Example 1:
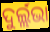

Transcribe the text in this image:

ଦୁର୍ଲ୍ଲଭା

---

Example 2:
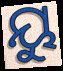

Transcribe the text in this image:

ୟୁ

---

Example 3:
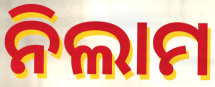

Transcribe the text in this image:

ନିଲାମ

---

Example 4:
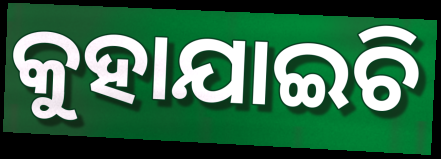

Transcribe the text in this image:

କୁହାଯାଇଚି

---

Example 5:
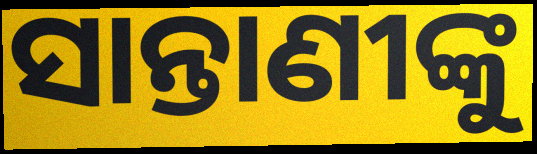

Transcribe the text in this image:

ସାନ୍ତାଣୀଙ୍କୁ